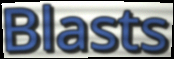
Blasts